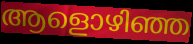
ആളൊഴിഞ്ഞ